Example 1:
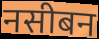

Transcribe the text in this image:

नसीबन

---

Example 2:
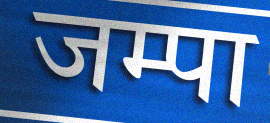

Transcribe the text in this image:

जम्पा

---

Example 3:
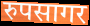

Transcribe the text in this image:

रुपसागर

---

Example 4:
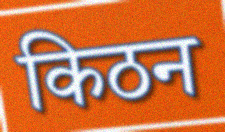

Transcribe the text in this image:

किठन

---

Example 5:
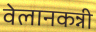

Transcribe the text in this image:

वेलानकन्नी